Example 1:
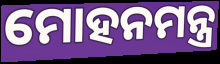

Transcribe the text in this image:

ମୋହନମନ୍ତ୍ର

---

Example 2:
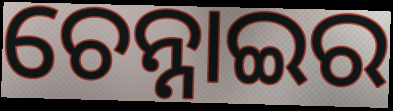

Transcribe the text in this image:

ଚେନ୍ନାଇର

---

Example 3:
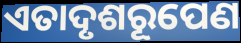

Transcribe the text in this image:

ଏତାଦୃଶରୂପେଣ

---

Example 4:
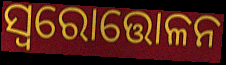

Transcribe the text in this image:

ସ୍ବରୋତ୍ତୋଳନ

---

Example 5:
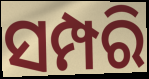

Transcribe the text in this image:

ସମ୍ପରି